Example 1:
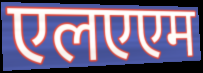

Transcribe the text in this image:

एलएएम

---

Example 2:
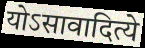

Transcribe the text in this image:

योऽसावादित्ये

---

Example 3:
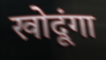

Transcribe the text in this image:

खोदूंगा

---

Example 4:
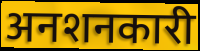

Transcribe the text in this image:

अनशनकारी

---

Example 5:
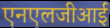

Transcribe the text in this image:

एनएलजीआई